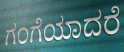
ಗಂಗೆಯಾದರೆ